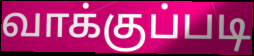
வாக்குப்படி